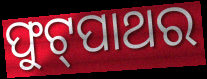
ଫୁଟ୍‌ପାଥର